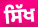
ਸਿੱਖ